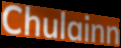
Chulainn